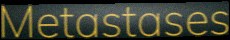
Metastases